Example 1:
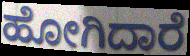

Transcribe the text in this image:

ಹೋಗಿದಾರೆ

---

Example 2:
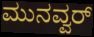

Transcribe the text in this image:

ಮುನವ್ವರ್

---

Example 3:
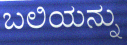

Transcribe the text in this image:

ಬಲಿಯನ್ನು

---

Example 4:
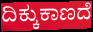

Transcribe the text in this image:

ದಿಕ್ಕುಕಾಣದೆ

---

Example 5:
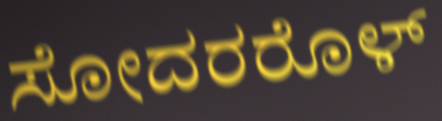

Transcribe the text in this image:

ಸೋದರರೊಳ್